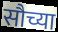
सौच्या